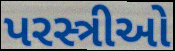
પરસ્ત્રીઓ